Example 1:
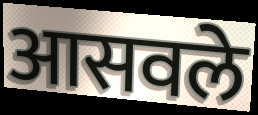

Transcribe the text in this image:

आसवले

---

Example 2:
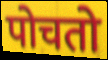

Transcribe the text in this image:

पोचतो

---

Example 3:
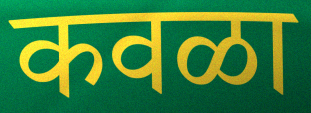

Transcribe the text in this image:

कवळा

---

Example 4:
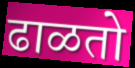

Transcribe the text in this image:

ढाळतो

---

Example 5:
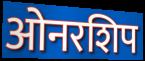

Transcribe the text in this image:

ओनरशिप